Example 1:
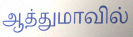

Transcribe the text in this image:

ஆத்துமாவில்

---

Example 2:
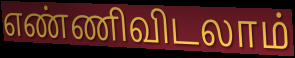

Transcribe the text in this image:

எண்ணிவிடலாம்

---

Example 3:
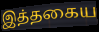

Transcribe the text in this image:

இத்தகைய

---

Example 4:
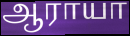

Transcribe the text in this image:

ஆராயா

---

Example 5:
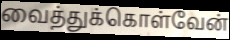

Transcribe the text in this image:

வைத்துக்கொள்வேன்